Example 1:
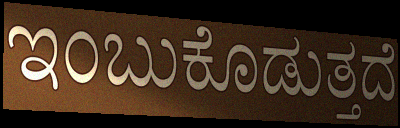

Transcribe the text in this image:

ಇಂಬುಕೊಡುತ್ತದೆ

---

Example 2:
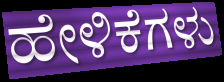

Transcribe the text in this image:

ಹೇಳಿಕೆಗಳು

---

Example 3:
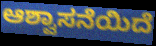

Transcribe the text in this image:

ಆಶ್ವಾಸನೆಯಿದೆ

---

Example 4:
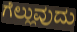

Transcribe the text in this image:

ಗೆಲ್ಲುವುದು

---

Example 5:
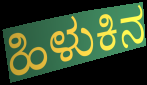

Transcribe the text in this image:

ಹಿಳುಕಿನ